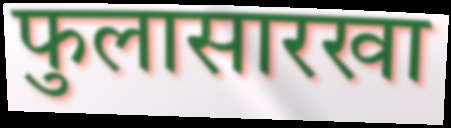
फुलासारखा